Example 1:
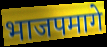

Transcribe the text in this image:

भाजपमागे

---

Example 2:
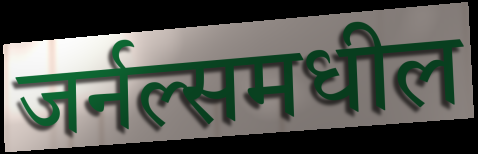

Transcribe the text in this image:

जर्नल्समधील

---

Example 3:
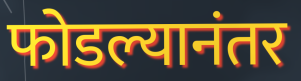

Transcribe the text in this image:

फोडल्यानंतर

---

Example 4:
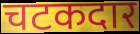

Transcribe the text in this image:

चटकदार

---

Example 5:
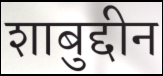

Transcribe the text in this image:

शाबुद्दीन